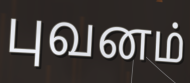
புவனம்